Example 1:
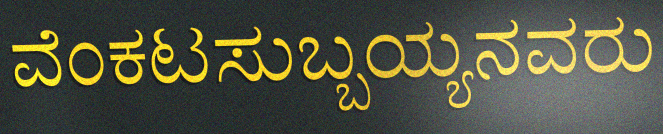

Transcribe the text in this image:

ವೆಂಕಟಸುಬ್ಬಯ್ಯನವರು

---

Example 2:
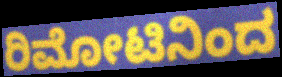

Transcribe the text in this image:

ರಿಮೋಟಿನಿಂದ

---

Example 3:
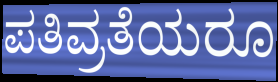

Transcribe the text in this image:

ಪತಿವ್ರತೆಯರೂ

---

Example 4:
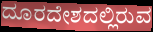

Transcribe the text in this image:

ದೂರದೇಶದಲ್ಲಿರುವ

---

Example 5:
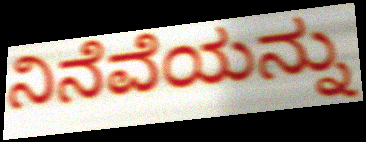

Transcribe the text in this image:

ನಿನೆವೆಯನ್ನು